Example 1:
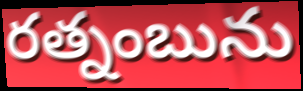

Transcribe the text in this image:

రత్నంబును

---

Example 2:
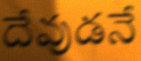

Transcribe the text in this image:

దేవుడనే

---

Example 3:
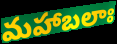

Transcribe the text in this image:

మహాబలాః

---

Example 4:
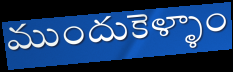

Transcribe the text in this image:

ముందుకెళ్ళాం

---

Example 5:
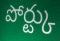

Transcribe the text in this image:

పోర్ట్కు